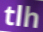
tlh